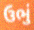
ઉભું